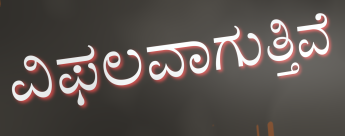
ವಿಫಲವಾಗುತ್ತಿವೆ